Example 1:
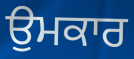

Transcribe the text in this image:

ਉਮਕਾਰ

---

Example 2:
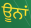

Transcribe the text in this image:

ਊਨਾਂ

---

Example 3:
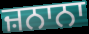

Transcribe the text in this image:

ਜ਼ਨਾਨਾ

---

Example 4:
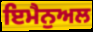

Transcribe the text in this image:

ਇਮੈਨੁਅਲ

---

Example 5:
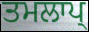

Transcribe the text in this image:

ਤਮਲਾਪ੍